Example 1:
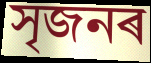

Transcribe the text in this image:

সৃজনৰ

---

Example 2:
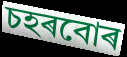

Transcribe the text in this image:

চহৰবোৰ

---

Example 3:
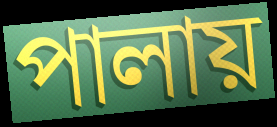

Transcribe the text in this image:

পালায়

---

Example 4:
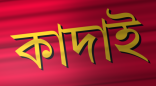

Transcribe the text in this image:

কাদাই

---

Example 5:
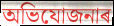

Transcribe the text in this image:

অভিযোজনাৰ